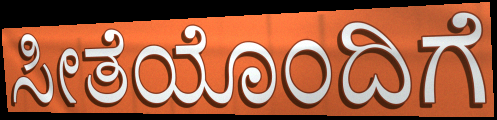
ಸೀತೆಯೊಂದಿಗೆ